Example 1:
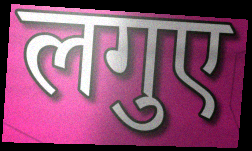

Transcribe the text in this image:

लगुए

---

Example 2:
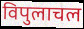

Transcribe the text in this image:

विपुलाचल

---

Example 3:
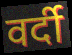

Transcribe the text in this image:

वर्दी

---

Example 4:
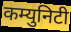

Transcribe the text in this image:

कम्युनिटी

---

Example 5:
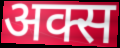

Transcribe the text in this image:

अक्स